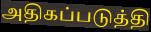
அதிகப்படுத்தி